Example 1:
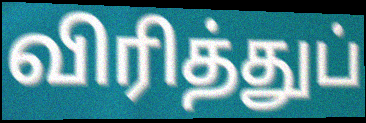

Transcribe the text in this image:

விரித்துப்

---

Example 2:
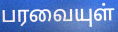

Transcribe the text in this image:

பரவையுள்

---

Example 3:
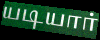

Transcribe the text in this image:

யடியார்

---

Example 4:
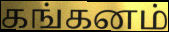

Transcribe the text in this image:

கங்கனம்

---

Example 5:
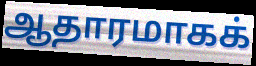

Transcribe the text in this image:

ஆதாரமாகக்